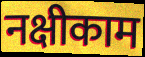
नक्षीकाम